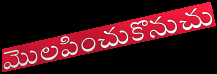
మొలపించుకొనుచు